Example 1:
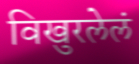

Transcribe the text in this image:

विखुरलेलं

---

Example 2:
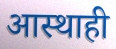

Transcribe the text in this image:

आस्थाही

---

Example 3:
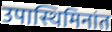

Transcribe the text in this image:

उपास्थिमिनांत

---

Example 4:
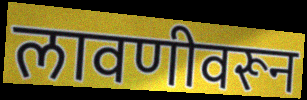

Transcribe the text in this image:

लावणीवरून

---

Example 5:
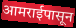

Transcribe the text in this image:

आमराईपासून